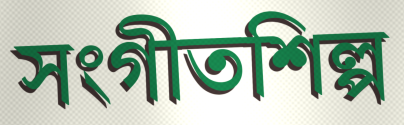
সংগীতশিল্প